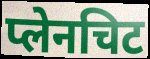
प्लेनचिट